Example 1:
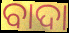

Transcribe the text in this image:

ବାଦା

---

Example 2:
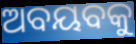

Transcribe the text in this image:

ଅବୟବକୁ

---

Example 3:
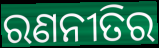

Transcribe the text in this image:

ରଣନୀତିର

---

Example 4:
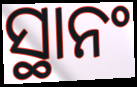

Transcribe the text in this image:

ସ୍ଥାନଂ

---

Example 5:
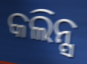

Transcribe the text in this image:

କଲିନ୍ସ